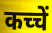
कच्चें